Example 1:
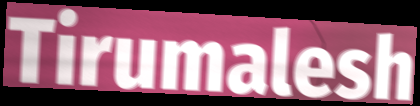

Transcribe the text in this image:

Tirumalesh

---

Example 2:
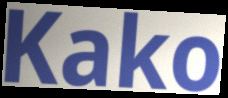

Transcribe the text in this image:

Kako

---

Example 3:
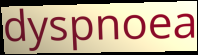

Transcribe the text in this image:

dyspnoea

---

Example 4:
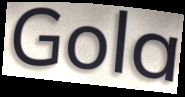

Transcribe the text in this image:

Gola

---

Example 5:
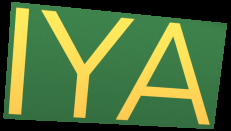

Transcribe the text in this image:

IYA